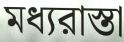
মধ্যরাস্তা